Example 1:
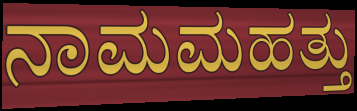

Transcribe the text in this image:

ನಾಮಮಹತ್ತು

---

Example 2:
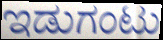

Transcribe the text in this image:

ಇಡುಗಂಟು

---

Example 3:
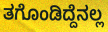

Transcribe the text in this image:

ತಗೊಂಡಿದ್ದೆನಲ್ಲ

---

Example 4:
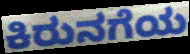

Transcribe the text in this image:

ಕಿರುನಗೆಯ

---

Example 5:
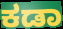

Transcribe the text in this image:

ಕಡಾ